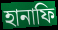
হানাফি